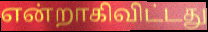
என்றாகிவிட்டது